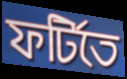
ফর্টিতে